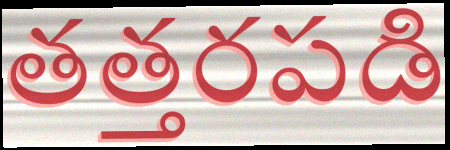
తత్తరపడి